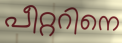
പീറ്ററിനെ